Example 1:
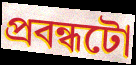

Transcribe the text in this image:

প্ৰবন্ধটো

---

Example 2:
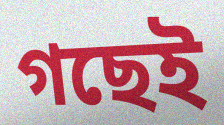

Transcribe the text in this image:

গছেই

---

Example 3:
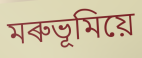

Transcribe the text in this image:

মৰুভূমিয়ে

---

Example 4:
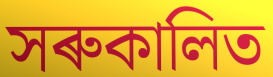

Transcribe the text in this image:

সৰুকালিত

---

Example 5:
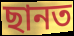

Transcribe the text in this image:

ছানত